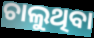
ଚାଲୁଥିବା